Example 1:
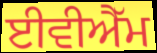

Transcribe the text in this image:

ਈਵੀਐੱਮ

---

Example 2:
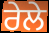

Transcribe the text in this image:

ਰੇਲੇ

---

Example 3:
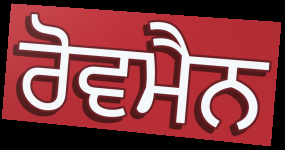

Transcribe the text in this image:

ਰੋਵਮੈਨ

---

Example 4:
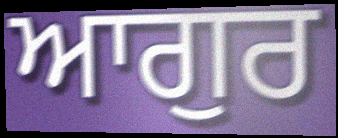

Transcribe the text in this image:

ਆਗੁਰ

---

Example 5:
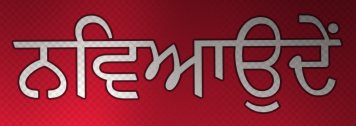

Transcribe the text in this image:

ਨਵਿਆਉਦੇਂ